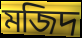
মজিদ